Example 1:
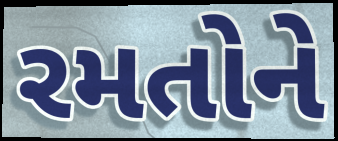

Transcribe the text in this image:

રમતોને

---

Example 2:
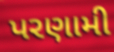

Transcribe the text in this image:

પરણામી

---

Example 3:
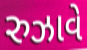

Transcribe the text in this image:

રુઝાવે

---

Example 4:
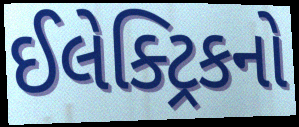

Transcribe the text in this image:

ઈલેક્ટ્રિકનો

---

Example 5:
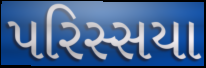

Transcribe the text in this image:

પરિસ્સયા